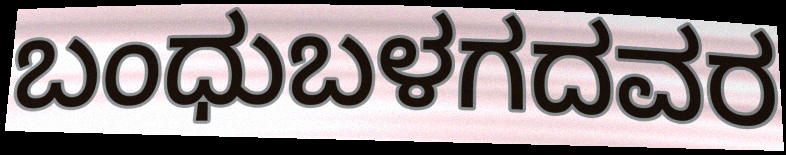
ಬಂಧುಬಳಗದವರ